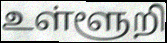
உள்ளூறி